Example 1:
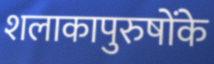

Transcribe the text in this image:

शलाकापुरुषोंके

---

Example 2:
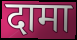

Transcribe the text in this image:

दामा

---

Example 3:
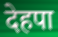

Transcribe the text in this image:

देहपा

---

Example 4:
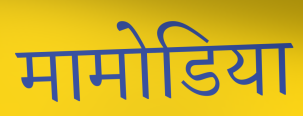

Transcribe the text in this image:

मामोडिया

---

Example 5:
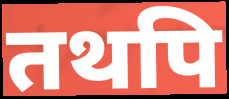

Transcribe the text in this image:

तथपि